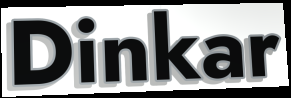
Dinkar